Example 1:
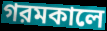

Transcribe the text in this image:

গরমকালে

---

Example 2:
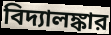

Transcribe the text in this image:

বিদ্যালঙ্কার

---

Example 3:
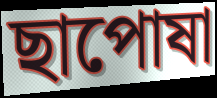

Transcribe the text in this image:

ছাপোষা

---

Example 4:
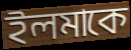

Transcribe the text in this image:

ইলমাকে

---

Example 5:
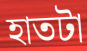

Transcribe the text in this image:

হাতটা